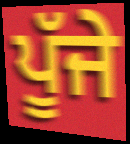
ਪੂੱਜੇ